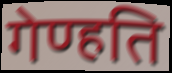
गेण्हति